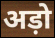
अड़ो